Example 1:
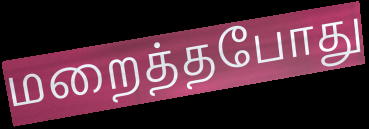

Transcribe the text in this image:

மறைத்தபோது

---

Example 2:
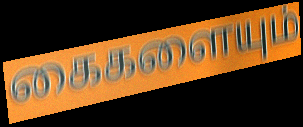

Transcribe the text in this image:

கைகளையும்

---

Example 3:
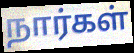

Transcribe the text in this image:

நார்கள்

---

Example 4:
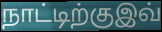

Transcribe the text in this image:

நாட்டிற்குஇவ்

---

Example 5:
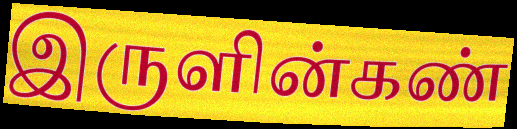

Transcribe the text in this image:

இருளின்கண்